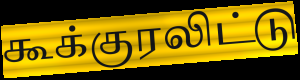
கூக்குரலிட்டு